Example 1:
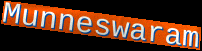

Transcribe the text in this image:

Munneswaram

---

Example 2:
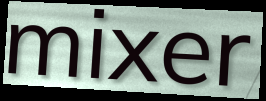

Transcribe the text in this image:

mixer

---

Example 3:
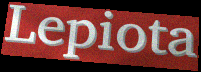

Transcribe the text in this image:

Lepiota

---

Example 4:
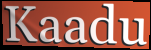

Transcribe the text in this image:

Kaadu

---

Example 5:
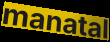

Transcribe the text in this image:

manatal